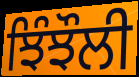
ਝਿੰਝੌਲੀ